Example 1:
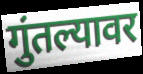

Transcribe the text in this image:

गुंतल्यावर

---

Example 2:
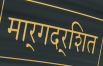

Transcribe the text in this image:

मार्गदर्शित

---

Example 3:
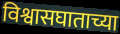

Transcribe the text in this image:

विश्वासघाताच्या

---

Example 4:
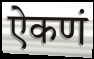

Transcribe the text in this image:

ऐकणं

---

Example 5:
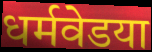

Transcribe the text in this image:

धर्मवेडया